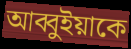
আব্বুইয়াকে